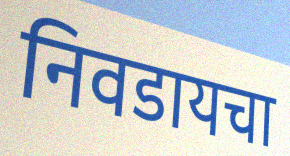
निवडायचा